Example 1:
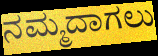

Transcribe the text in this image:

ನಮ್ಮದಾಗಲು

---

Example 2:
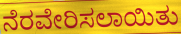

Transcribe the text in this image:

ನೆರವೇರಿಸಲಾಯಿತು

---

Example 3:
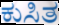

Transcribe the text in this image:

ಕುಸಿತ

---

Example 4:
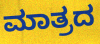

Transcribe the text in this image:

ಮಾತ್ರದ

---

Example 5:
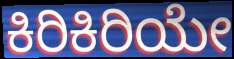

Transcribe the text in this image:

ಕಿರಿಕಿರಿಯೇ